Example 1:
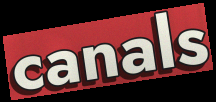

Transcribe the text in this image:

canals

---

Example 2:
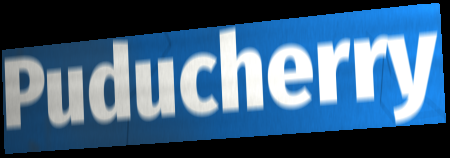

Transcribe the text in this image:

Puducherry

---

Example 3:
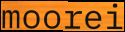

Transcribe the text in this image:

moorei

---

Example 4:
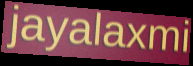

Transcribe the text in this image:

jayalaxmi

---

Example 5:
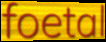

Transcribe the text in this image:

foetal